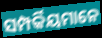
ସମ୍ପର୍କିୟମାନେ